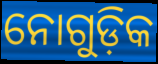
ନୋଗୁଡ଼ିକ